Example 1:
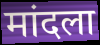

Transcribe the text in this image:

मांदला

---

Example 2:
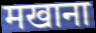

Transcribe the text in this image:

मखाना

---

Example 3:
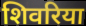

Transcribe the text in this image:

शिवरिया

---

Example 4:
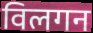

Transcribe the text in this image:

विलगन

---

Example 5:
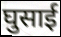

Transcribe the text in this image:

घुसाई